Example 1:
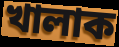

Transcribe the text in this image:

খালাক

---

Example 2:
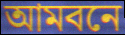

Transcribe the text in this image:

আমবনে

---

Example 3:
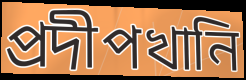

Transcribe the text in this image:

প্রদীপখানি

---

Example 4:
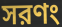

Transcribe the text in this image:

সরণং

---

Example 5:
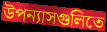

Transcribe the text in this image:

উপন্যাসগুলিতে